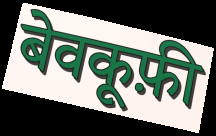
बेवकूफ़ी